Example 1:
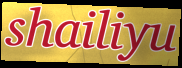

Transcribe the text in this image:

shailiyu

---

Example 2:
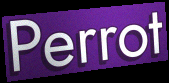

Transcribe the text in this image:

Perrot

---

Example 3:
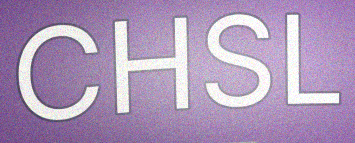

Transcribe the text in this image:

CHSL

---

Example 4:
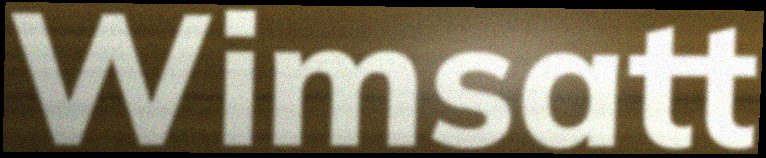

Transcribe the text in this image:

Wimsatt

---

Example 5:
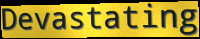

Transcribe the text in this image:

Devastating